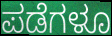
ಪಡೆಗಳೂ